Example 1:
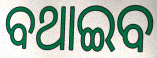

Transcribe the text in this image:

ବଥାଇବ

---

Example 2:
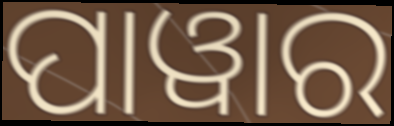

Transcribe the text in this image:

ପାୱାର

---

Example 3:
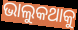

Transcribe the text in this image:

ଭାଲୁକଥାକୁ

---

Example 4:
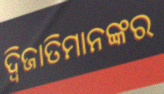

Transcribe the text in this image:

ଦ୍ୱିଜାତିମାନଙ୍କର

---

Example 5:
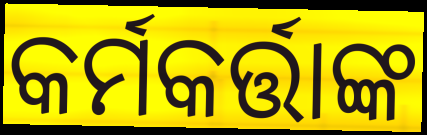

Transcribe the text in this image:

କର୍ମକର୍ତ୍ତାଙ୍କ